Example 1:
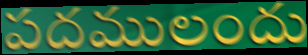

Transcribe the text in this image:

పదములందు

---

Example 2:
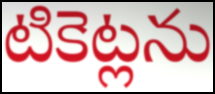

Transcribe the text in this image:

టికెట్లను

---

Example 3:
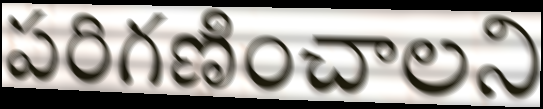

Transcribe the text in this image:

పరిగణించాలని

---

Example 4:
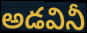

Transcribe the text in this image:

అడవినీ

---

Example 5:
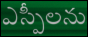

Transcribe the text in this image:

ఎస్పీలను